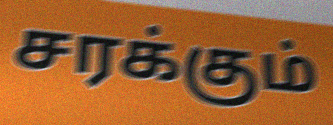
சரக்கும்